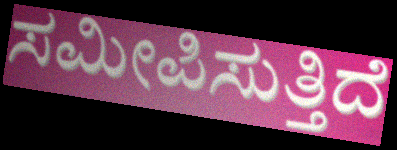
ಸಮೀಪಿಸುತ್ತಿದೆ